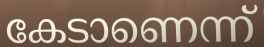
കേടാണെന്ന്